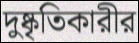
দুষ্কৃতিকারীর